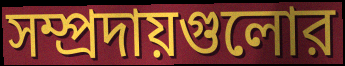
সম্প্রদায়গুলোর